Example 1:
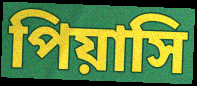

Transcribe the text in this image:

পিয়াসি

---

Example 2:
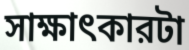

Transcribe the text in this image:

সাক্ষাৎকারটা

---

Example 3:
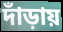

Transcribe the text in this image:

দাঁড়ায়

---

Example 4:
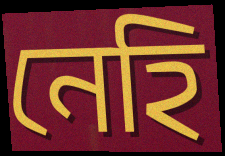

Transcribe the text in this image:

নেহি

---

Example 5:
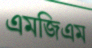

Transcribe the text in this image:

এমজিএম